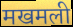
मखमली